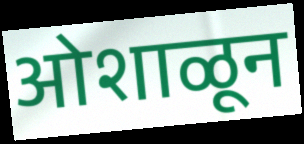
ओशाळून